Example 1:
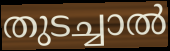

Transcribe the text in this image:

തുടച്ചാൽ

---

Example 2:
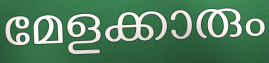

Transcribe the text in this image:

മേളക്കാരും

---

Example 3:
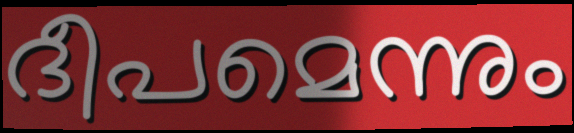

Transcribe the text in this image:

ദീപമെന്നും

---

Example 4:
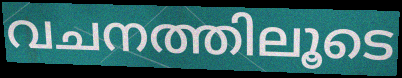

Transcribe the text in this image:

വചനത്തിലൂടെ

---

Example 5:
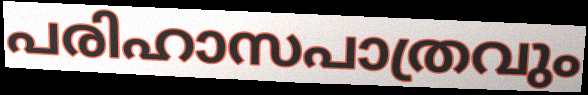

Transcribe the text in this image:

പരിഹാസപാത്രവും